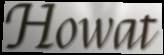
Howat